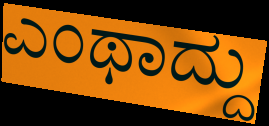
ಎಂಥಾದ್ದು